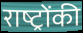
राष्ट्रोंकी